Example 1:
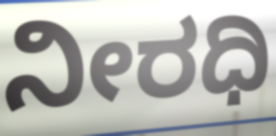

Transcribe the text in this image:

ನೀರಧಿ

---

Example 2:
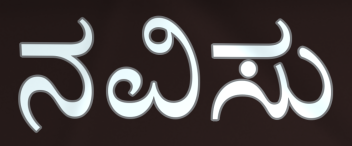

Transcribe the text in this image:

ನವಿಸು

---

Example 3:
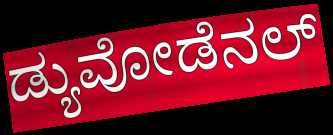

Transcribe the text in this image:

ಡ್ಯುವೋಡೆನಲ್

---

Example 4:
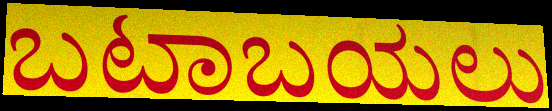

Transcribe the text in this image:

ಬಟಾಬಯಲು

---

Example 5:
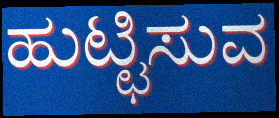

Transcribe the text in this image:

ಹುಟ್ಟಿಸುವ